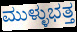
ಮುಳ್ಳುಭತ್ತ